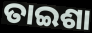
ତାଇଶା